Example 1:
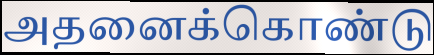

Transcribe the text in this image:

அதனைக்கொண்டு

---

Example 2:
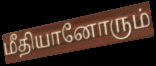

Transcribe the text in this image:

மீதியானோரும்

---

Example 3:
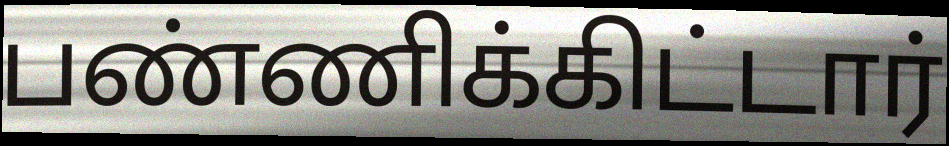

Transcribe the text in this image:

பண்ணிக்கிட்டார்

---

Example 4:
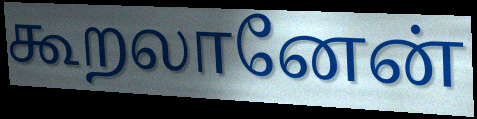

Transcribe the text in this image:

கூறலானேன்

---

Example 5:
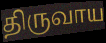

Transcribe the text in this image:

திருவாய